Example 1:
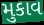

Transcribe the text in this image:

મુકાવ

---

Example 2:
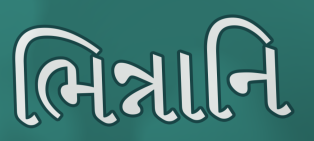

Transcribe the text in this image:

ભિન્નાનિ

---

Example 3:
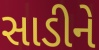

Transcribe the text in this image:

સાડીને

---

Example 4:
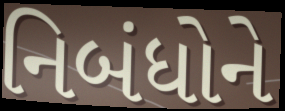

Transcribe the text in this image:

નિબંધોને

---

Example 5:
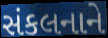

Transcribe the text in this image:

સંકલનાને